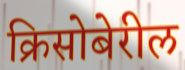
क्रिसोबेरील